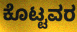
ಕೊಟ್ಟವರ